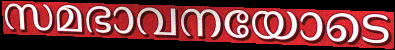
സമഭാവനയോടെ